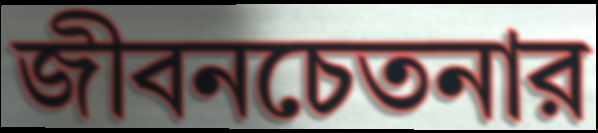
জীবনচেতনার